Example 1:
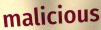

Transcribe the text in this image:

malicious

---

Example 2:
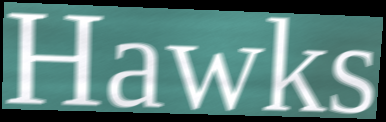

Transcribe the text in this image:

Hawks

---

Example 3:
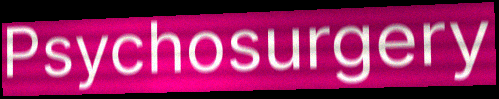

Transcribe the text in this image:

Psychosurgery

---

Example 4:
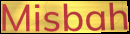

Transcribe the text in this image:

Misbah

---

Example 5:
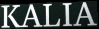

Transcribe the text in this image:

KALIA